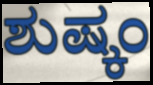
ಶುಷ್ಕಂ